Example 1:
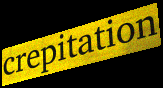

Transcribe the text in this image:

crepitation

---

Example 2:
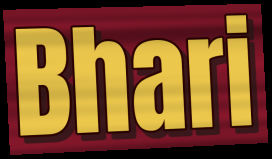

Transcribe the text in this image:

Bhari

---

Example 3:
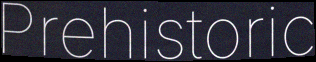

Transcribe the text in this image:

Prehistoric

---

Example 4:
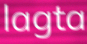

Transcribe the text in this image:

lagta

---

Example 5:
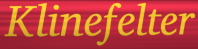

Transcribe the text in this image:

Klinefelter